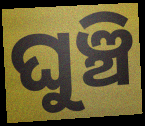
ଘୁଞ୍ଚି